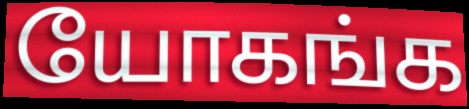
யோகங்க